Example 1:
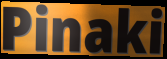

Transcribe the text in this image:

Pinaki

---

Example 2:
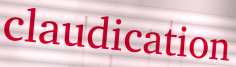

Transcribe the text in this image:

claudication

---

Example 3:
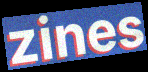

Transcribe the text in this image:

zines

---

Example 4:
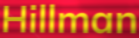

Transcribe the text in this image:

Hillman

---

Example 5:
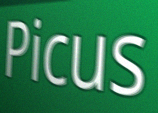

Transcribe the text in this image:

Picus